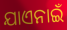
ଯାଏନାଇଁ